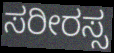
ಸರೀರಸ್ಸ